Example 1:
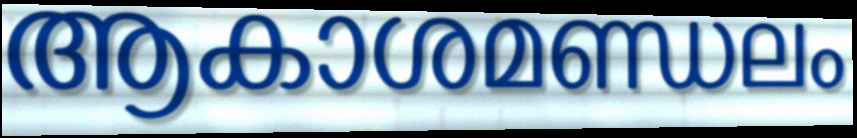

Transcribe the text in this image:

ആകാശമണ്ഡലം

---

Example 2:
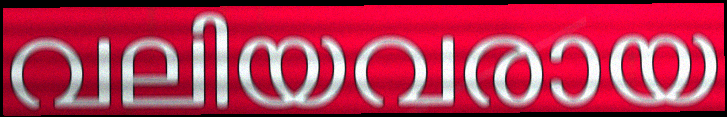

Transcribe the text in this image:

വലിയവരായ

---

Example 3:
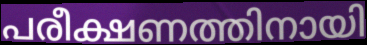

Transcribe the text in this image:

പരീക്ഷണത്തിനായി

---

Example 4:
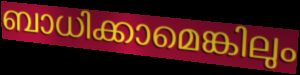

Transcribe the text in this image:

ബാധിക്കാമെങ്കിലും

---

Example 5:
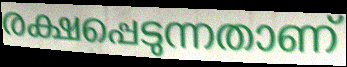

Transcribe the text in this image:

രക്ഷപ്പെടുന്നതാണ്